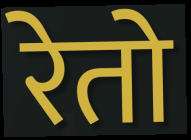
रेतो